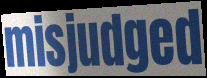
misjudged